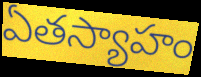
ఏతస్యాహం